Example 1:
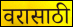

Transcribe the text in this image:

वरासाठी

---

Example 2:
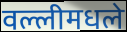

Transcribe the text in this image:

वल्लीमधले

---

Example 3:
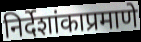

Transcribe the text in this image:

निर्देशांकाप्रमाणे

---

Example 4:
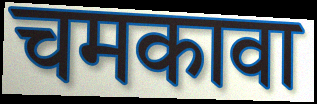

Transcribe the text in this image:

चमकावा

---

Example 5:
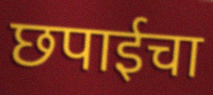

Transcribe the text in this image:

छपाईचा